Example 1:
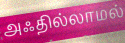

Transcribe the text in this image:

அஃதில்லாமல்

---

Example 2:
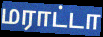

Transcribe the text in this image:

மராட்டா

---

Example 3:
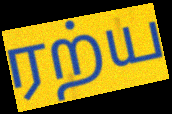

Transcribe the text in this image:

ரற்ய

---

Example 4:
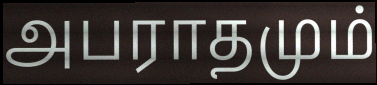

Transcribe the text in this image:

அபராதமும்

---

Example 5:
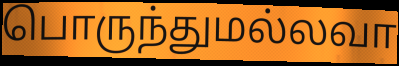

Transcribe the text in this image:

பொருந்துமல்லவா